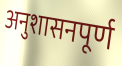
अनुशासनपूर्ण